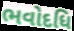
ભવોદધિ